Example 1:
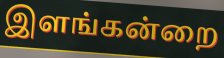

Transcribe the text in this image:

இளங்கன்றை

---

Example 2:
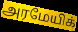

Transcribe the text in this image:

அரமேயிக்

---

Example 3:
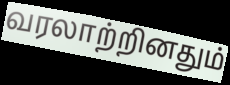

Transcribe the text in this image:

வரலாற்றினதும்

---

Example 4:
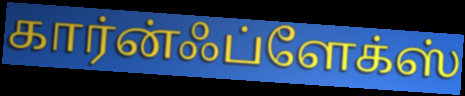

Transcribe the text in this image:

கார்ன்ஃப்ளேக்ஸ்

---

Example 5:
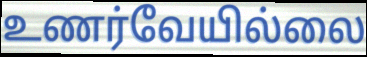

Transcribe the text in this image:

உணர்வேயில்லை